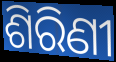
ଶିରିଣୀ